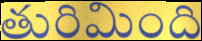
తురిమింది